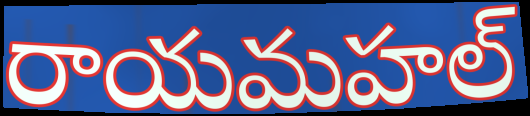
రాయమహల్